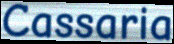
Cassaria